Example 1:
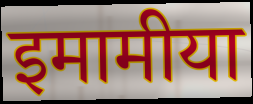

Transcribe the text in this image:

इमामीया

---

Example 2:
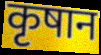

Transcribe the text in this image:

कृषान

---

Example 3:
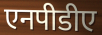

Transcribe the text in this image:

एनपीडीए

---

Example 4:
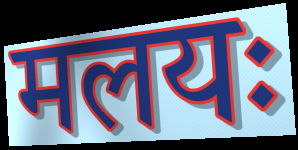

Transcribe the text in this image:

मलयः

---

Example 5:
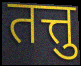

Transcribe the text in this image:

तत्तु